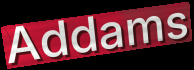
Addams